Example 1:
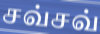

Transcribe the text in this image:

சவ்சவ்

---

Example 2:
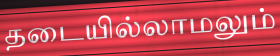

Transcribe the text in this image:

தடையில்லாமலும்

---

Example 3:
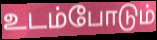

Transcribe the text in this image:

உடம்போடும்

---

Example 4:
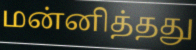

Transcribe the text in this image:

மன்னித்தது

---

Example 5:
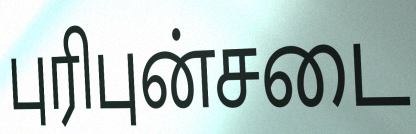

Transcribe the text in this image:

புரிபுன்சடை